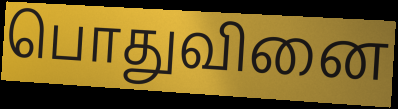
பொதுவினை